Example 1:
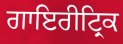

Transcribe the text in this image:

ਗਾਇਰੀਟ੍ਰਿਕ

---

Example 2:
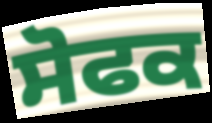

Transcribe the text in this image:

ਸੋਫਕ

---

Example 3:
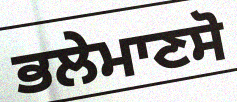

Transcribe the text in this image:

ਭਲੇਮਾਣਸੋ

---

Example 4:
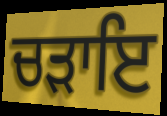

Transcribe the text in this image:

ਚੜਾਇ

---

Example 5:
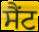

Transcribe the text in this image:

ਸੈਂਟ